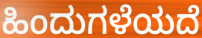
ಹಿಂದುಗಳೆಯದೆ